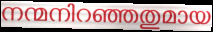
നന്മനിറഞ്ഞതുമായ